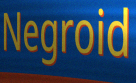
Negroid